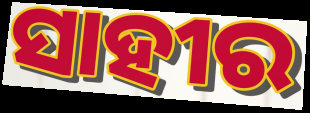
ସାହୀର